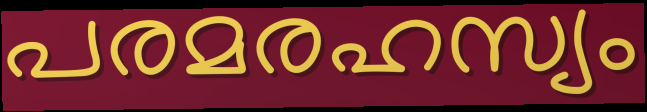
പരമരഹസ്യം